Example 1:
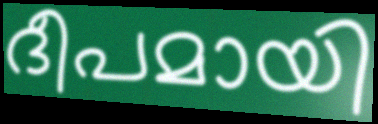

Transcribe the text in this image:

ദീപമായി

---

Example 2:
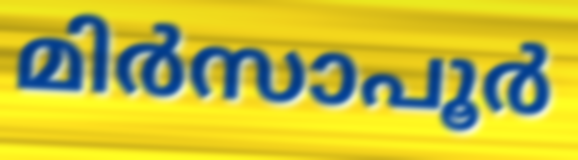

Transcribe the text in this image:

മിർസാപൂർ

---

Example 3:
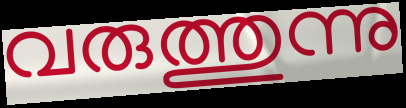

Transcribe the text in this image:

വരുത്തുന്നു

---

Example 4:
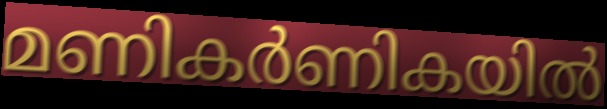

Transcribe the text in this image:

മണികർണികയിൽ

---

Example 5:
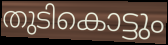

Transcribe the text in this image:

തുടികൊട്ടും